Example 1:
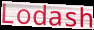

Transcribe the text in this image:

Lodash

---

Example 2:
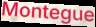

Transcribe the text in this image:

Montegue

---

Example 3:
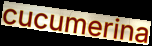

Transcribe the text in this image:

cucumerina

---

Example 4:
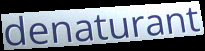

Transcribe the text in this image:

denaturant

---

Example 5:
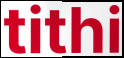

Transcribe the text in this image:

tithi